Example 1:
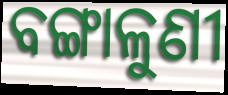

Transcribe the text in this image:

ବଙ୍ଗାଳୁଣୀ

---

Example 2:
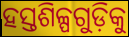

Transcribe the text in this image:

ହସ୍ତଶିଳ୍ପଗୁଡ଼ିକୁ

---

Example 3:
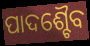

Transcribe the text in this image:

ପାଦଶ୍ଚୈବ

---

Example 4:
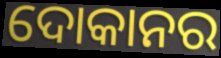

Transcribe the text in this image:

ଦୋକାନର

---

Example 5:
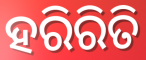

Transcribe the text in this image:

ହରିରିତି